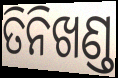
ତିନିଖଣ୍ଡ